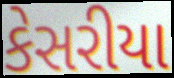
કેસરીયા